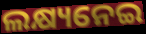
ଲକ୍ଷ୍ୟନେଇ